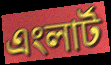
এংলার্ট